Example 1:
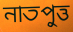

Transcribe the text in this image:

নাতপুত্ত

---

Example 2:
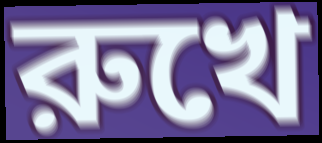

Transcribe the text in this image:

রুখে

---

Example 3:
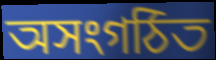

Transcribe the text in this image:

অসংগঠিত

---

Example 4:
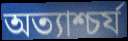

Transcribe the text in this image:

অত্যাশ্চর্য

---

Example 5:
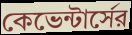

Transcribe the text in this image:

কেভেন্টার্সের